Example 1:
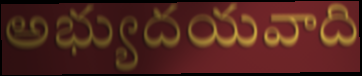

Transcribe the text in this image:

అభ్యుదయవాది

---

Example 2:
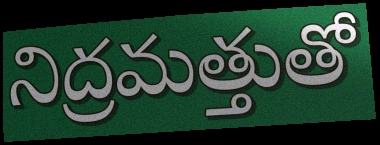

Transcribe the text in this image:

నిద్రమత్తుతో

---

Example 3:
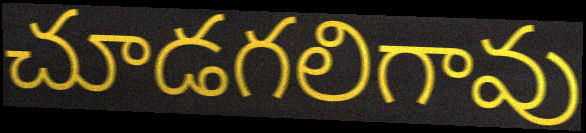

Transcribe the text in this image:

చూడగలిగావు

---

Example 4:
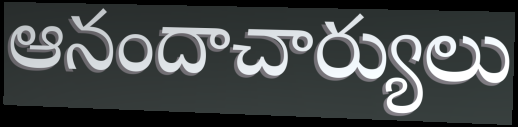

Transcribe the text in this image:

ఆనందాచార్యులు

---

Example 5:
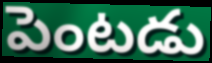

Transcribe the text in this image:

పెంటడు